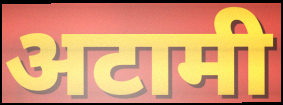
अटामी